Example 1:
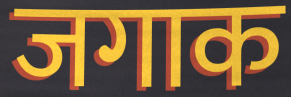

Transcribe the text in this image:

जगाक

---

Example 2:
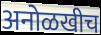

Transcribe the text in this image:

अनोळखीच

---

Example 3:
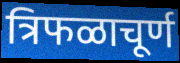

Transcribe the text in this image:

त्रिफळाचूर्ण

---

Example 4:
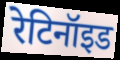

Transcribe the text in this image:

रेटिनॉइड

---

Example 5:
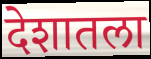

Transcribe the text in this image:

देशातला